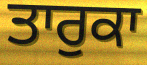
ਤਾਰੁਕਾ